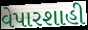
વેપારશાહી